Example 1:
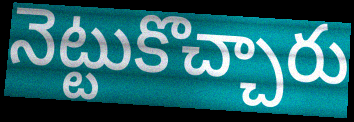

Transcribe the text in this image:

నెట్టుకొచ్చారు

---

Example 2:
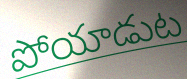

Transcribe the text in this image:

పోయాడుట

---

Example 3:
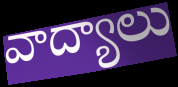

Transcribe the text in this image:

వాద్యాలు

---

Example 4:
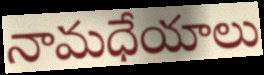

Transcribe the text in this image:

నామధేయాలు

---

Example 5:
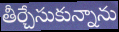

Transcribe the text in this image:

తీర్చేసుకున్నాను